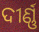
ଦୀର୍ଣ୍ଣ